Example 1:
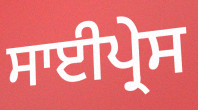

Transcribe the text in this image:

ਸਾਈਪ੍ਰੇਸ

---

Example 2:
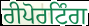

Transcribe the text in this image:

ਰੀਪੋਰਟਿੰਗ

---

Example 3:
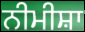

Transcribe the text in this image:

ਨੀਮੀਸ਼ਾ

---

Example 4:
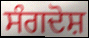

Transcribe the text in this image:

ਸੰਗਦੋਸ਼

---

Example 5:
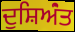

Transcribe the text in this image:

ਦੁਸ਼ਿਅਂੰਤ